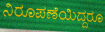
ನಿರೂಪಣೆಯಿದ್ದರೂ